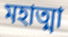
মহাত্মা